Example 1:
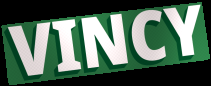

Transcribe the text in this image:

VINCY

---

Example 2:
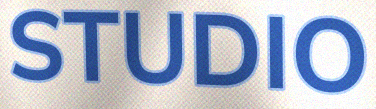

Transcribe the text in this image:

STUDIO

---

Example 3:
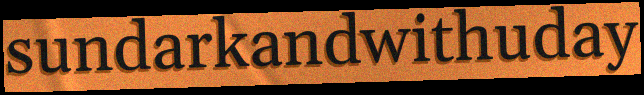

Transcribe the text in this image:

sundarkandwithuday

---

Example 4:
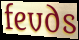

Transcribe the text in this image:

feuds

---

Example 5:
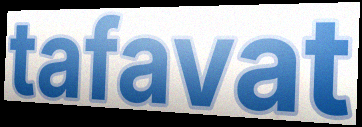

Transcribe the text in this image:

tafavat